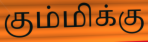
கும்மிக்கு